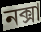
নক্সা